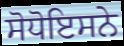
ਸੋਧੋਇਸਨੇ